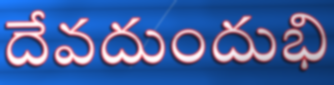
దేవదుందుభి